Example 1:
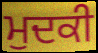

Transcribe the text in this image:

ਮੁਦਕੀ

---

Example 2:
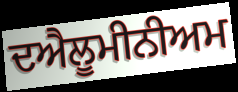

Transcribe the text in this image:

ਦਐਲੂਮੀਨੀਅਮ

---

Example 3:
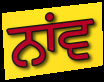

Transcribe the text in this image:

ਨਾਂਵ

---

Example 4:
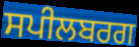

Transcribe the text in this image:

ਸਪੀਲਬਰਗ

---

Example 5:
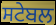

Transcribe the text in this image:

ਸਟੇਬਲ